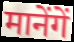
मानेंगें